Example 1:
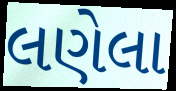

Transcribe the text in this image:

લણેલા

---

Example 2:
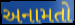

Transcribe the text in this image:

અનામતો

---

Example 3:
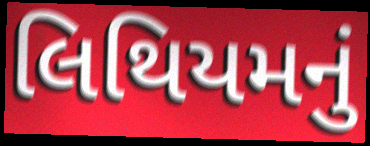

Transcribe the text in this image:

લિથિયમનું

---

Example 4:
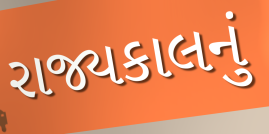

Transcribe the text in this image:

રાજ્યકાલનું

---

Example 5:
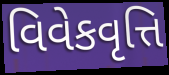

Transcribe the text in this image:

વિવેકવૃત્તિ